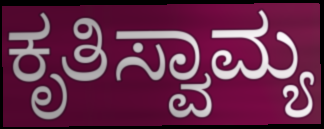
ಕೃತಿಸ್ವಾಮ್ಯ